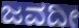
ಜವದೀ